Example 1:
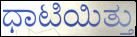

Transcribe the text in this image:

ಧಾಟಿಯಿತ್ತು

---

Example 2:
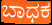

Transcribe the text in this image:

ಬಾಧಕ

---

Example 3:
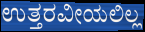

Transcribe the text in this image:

ಉತ್ತರವೀಯಲಿಲ್ಲ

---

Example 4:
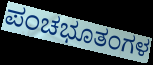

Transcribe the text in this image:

ಪಂಚಭೂತಂಗಳ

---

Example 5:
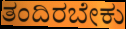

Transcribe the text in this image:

ತಂದಿರಬೇಕು